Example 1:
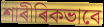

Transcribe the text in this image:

শাৰীৰিকভাবে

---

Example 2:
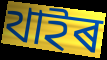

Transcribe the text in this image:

থাইৰ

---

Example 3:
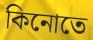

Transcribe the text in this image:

কিনোতে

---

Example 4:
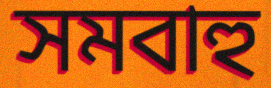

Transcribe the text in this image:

সমবাহু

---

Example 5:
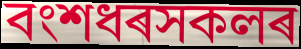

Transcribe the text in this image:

বংশধৰসকলৰ